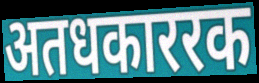
अतधकाररक